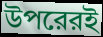
উপরেরই